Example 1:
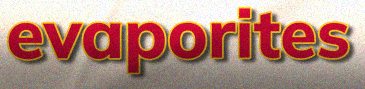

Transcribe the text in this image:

evaporites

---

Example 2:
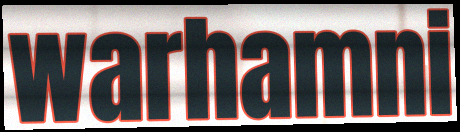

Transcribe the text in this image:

warhamni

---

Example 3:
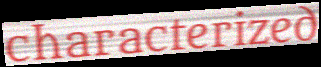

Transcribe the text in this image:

characterized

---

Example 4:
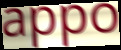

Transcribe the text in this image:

appo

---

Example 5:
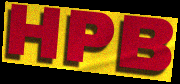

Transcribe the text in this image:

HPB